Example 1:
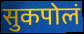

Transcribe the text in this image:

सुकपोलं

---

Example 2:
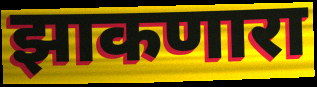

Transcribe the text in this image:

झाकणारा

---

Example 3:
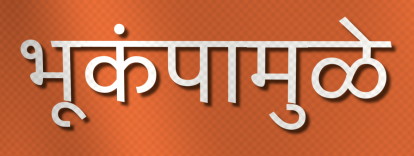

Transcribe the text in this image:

भूकंपामुळे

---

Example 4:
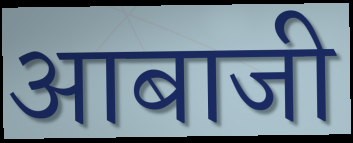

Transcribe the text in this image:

आबाजी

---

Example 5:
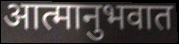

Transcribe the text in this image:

आत्मानुभवात